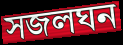
সজলঘন